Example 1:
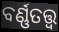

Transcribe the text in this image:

ବର୍ଣ୍ଣତତ୍ତ୍ଵ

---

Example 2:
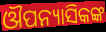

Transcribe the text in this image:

ଔପନ୍ୟାସିକଙ୍କ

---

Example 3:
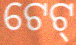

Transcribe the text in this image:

ଟେଟ୍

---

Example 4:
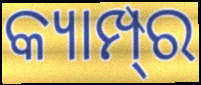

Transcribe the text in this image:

କ୍ୟାମ୍ପ୍‍ର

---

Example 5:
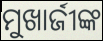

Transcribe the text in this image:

ମୁଖାର୍ଜୀଙ୍କ